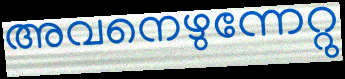
അവനെഴുന്നേറ്റു